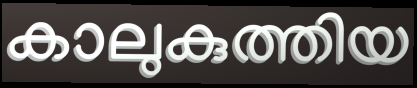
കാലുകുത്തിയ